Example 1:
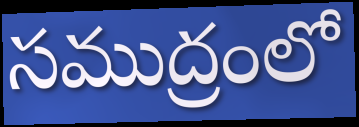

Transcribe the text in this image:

సముద్రంలో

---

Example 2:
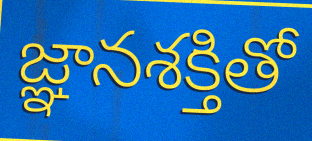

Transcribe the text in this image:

జ్ఞానశక్తితో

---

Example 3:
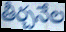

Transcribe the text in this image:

తీర్చనేల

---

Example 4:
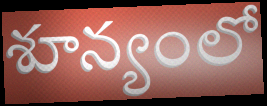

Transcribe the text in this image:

శూన్యంలో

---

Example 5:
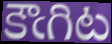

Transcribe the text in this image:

కౌఁగిట